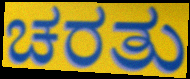
ಚರತು